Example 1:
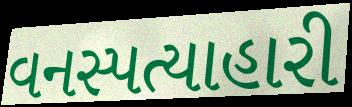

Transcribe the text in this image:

વનસ્પત્યાહારી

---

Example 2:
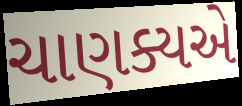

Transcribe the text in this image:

ચાણક્યએ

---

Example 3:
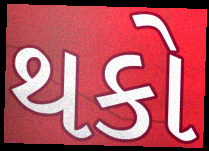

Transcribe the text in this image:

થકો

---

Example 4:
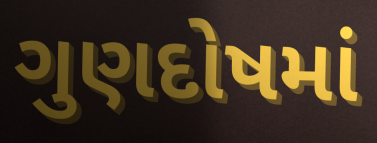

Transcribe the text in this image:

ગુણદોષમાં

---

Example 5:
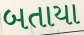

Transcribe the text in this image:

બતાયા